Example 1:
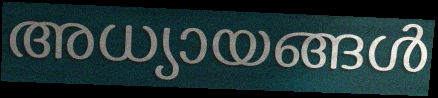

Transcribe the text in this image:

അധ്യായങ്ങൾ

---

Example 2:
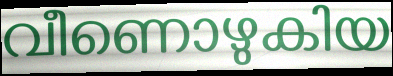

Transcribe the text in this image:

വീണൊഴുകിയ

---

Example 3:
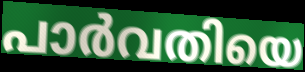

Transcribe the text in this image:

പാർവതിയെ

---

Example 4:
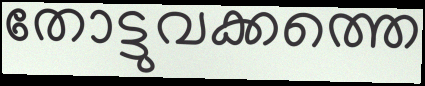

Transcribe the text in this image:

തോട്ടുവക്കത്തെ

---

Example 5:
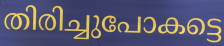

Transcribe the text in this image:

തിരിച്ചുപോകട്ടെ